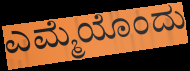
ಎಮ್ಮೆಯೊಂದು